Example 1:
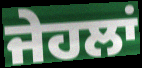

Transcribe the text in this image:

ਜੇਹਲਾਂ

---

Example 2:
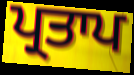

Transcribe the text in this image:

ਪ੍ਰਤਾਪ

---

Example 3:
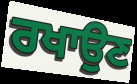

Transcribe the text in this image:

ਰਖਾਉਣ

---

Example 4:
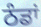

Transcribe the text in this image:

ਠੰਡਾਂ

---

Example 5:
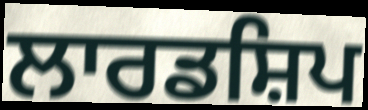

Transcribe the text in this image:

ਲਾਰਡਸ਼ਿਪ